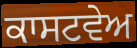
ਕਾਸਟਵੇਅ